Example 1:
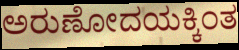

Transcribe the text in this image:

ಅರುಣೋದಯಕ್ಕಿಂತ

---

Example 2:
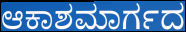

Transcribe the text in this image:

ಆಕಾಶಮಾರ್ಗದ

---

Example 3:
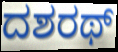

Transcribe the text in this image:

ದಶರಥ್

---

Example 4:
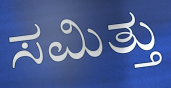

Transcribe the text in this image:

ಸಮಿತ್ತು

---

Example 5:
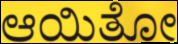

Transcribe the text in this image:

ಆಯಿತೋ